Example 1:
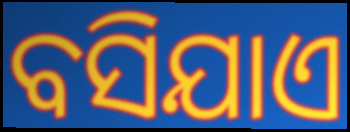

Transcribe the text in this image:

ବସିଯାଏ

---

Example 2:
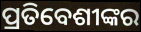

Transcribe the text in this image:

ପ୍ରତିବେଶୀଙ୍କର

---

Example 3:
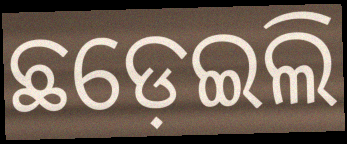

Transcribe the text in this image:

ଛଡ଼େଇଲି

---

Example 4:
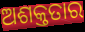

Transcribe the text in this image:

ଅଶକ୍ତତାର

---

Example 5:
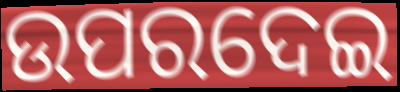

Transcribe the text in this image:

ଉପରଦେଇ